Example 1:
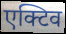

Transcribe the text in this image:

एक्टिव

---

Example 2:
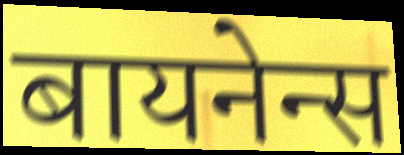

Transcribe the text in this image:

बायनेन्स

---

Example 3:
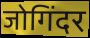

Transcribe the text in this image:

जोगिंदर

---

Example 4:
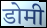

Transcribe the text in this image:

डोमी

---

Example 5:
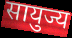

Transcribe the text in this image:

सायुज्य